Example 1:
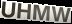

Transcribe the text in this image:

UHMW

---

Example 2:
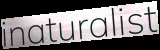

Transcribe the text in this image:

inaturalist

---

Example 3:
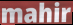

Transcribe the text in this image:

mahir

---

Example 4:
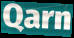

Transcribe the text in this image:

Qarn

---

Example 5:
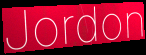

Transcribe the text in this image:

Jordon